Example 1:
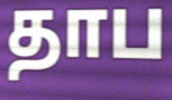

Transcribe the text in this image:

தாப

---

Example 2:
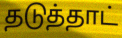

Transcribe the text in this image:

தடுத்தாட்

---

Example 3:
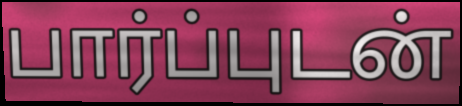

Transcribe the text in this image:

பார்ப்புடன்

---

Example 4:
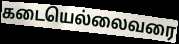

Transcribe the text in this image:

கடையெல்லைவரை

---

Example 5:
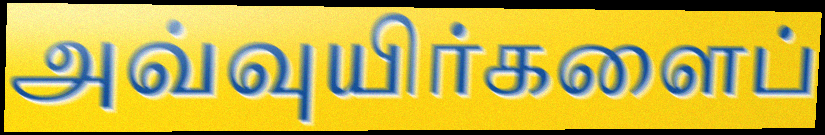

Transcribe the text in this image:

அவ்வுயிர்களைப்